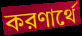
করণার্থে